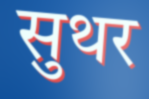
सुथर